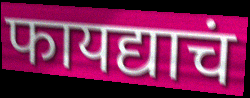
फायद्याचं